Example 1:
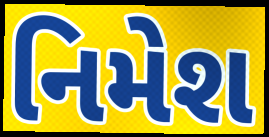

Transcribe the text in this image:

નિમેશ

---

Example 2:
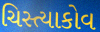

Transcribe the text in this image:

ચિસ્ત્યાકોવ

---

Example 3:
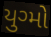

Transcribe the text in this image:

યુગ્મો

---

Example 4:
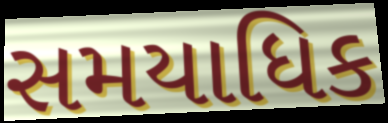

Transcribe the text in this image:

સમયાધિક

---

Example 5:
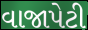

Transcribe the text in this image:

વાજાપેટી